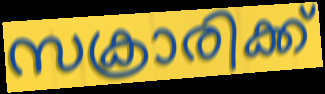
സക്രാരിക്ക്